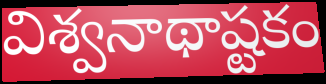
విశ్వనాథాష్టకం